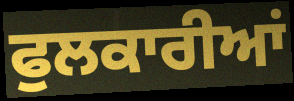
ਫੁਲਕਾਰੀਆਂ